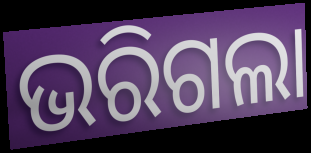
ଭରିଗଲା